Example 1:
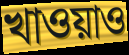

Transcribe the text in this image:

খাওয়াও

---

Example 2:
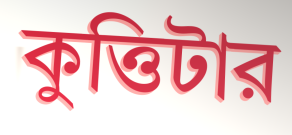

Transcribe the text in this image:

কুত্তিটার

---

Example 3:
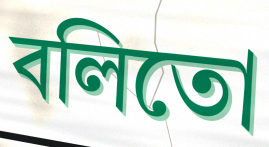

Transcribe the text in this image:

বলিতো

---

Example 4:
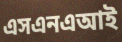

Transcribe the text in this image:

এসএনএআই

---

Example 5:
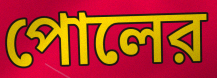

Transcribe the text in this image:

পোলের